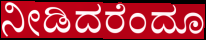
ನೀಡಿದರೆಂದೂ